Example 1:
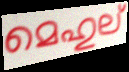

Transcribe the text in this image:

മെഹുല്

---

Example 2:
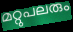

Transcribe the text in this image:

മറ്റുപലരും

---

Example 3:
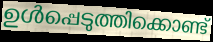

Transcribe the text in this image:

ഉൾപ്പെടുത്തിക്കൊണ്ട്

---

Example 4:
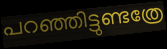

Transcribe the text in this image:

പറഞ്ഞിട്ടുണ്ടത്രേ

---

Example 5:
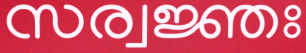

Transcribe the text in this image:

സര്വജ്ഞഃ